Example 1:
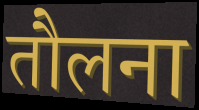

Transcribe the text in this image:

तौलना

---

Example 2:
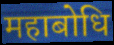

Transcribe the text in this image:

महाबोधि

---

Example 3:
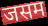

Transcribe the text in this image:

जसम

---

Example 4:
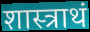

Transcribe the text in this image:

शास्त्राथं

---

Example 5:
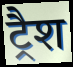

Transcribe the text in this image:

ट्रैश